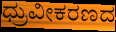
ಧ್ರುವೀಕರಣದ